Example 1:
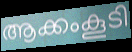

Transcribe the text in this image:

ആക്കംകൂടി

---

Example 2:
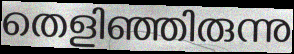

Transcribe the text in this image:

തെളിഞ്ഞിരുന്നു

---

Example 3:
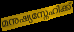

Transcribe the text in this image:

മനുഷ്യസ്നേഹിക്ക്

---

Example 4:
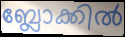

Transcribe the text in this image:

ബ്ലോക്കിൽ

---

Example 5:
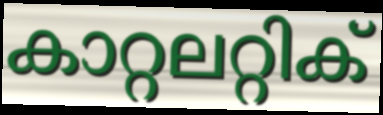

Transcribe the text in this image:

കാറ്റലറ്റിക്